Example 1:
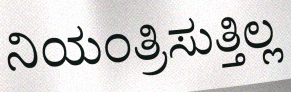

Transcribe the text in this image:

ನಿಯಂತ್ರಿಸುತ್ತಿಲ್ಲ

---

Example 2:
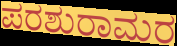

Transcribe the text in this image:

ಪರಶುರಾಮರ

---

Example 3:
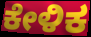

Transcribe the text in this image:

ಕೇಳಿಕ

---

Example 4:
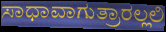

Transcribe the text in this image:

ಸಾಧಾವಾಗುತ್ರಾರಲ್ಲಲಿ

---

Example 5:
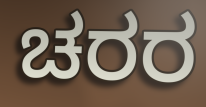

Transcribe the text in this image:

ಚರರ